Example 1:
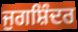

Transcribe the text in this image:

ਜੁਗਸ਼ਿੰਦਰ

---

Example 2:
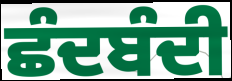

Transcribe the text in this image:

ਛੰਦਬੰਦੀ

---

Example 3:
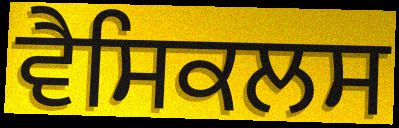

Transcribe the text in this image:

ਵੈਸਿਕਲਸ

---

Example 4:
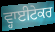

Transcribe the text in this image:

ਵ੍ਹਾਈਟੇਕਰ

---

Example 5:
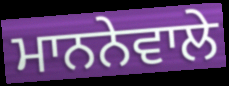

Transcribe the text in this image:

ਮਾਨਨੇਵਾਲੇ